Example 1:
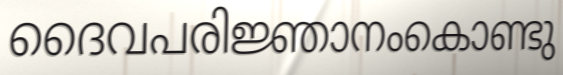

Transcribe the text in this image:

ദൈവപരിജ്ഞാനംകൊണ്ടു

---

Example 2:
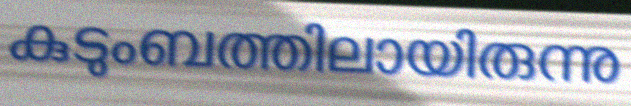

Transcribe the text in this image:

കുടുംബത്തിലായിരുന്നു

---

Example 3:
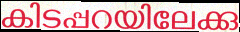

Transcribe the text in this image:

കിടപ്പറയിലേക്കു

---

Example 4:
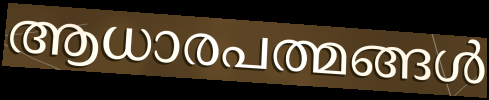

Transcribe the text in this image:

ആധാരപത്മങ്ങൾ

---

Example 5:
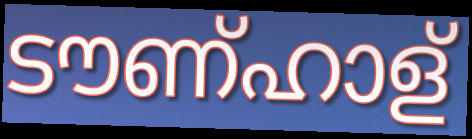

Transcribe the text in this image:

ടൗണ്ഹാള്